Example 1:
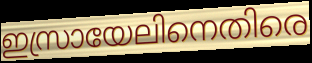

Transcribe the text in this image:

ഇസ്രായേലിനെതിരെ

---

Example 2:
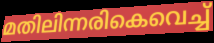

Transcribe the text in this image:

മതിലിന്നരികെവെച്ച്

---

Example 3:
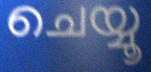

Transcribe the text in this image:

ചെയ്യൂ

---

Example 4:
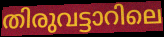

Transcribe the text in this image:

തിരുവട്ടാറിലെ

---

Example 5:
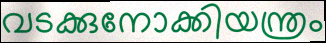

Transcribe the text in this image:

വടക്കുനോക്കിയന്ത്രം